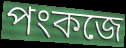
পংকজে